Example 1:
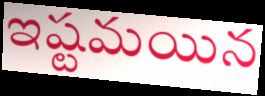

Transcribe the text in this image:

ఇష్టమయిన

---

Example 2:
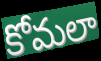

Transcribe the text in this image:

కోమలా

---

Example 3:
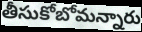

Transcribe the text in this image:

తీసుకోబోమన్నారు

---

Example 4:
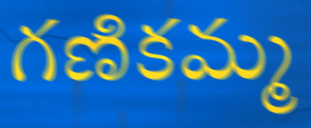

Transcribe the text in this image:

గణికమ్మ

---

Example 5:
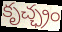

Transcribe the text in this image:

కృచ్ఛ్రం